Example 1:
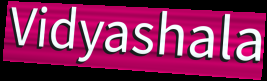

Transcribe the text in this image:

Vidyashala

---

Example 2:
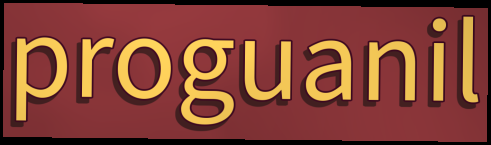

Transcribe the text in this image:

proguanil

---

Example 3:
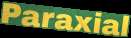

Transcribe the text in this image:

Paraxial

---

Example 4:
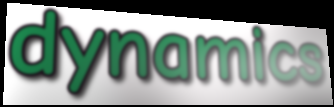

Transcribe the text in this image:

dynamics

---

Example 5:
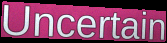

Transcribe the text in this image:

Uncertain